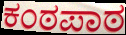
ಕಂಠಪಾಠ